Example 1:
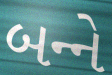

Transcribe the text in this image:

બન્‍ને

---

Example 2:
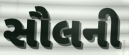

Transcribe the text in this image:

સૌલની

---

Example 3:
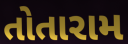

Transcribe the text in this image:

તોતારામ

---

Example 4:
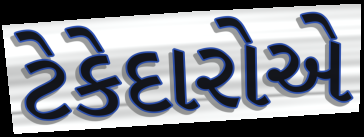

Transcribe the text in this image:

ટેકેદારોએ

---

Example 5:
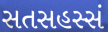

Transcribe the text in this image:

સતસહસ્સં